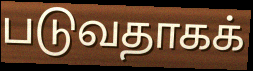
படுவதாகக்